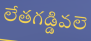
లేతగడ్డివలె